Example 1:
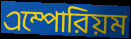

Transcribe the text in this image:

এম্পোরিয়ম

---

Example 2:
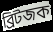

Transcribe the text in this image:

ব্রিটজক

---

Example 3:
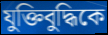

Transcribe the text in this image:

যুক্তিবুদ্ধিকে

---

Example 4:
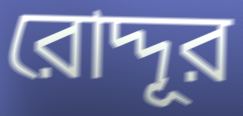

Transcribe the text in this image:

রোদ্দূর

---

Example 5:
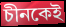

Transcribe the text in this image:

চীনকেই